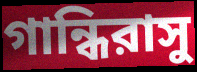
গান্ধিরাসু